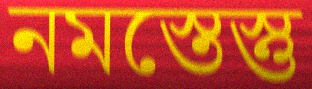
নমস্তেস্তু